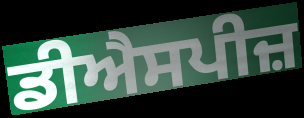
ਡੀਐਸਪੀਜ਼